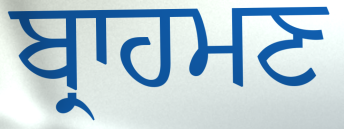
ਬ੍ਰਾਹਮਣ